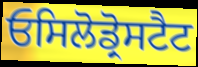
ਓਸਿਲੋਡ੍ਰੋਸਟੈਟ